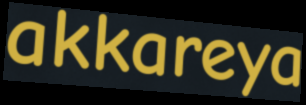
akkareya